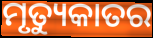
ମୃତ୍ୟୁକାତର